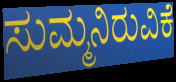
ಸುಮ್ಮನಿರುವಿಕೆ